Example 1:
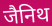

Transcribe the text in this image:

जैनिथ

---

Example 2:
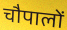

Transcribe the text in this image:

चौपालों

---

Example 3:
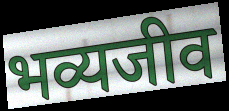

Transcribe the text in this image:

भव्यजीव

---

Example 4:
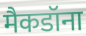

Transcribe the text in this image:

मैकडॉना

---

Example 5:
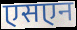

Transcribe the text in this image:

एसएन